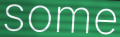
some